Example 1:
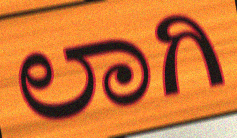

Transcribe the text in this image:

ಲಾಗಿ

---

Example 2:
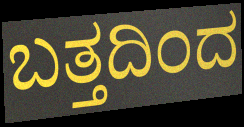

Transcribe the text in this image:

ಬತ್ತದಿಂದ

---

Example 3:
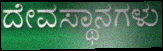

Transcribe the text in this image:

ದೇವಸ್ಥಾನಗಳು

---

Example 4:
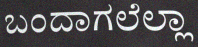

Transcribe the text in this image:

ಬಂದಾಗಲೆಲ್ಲಾ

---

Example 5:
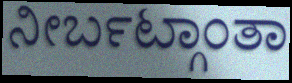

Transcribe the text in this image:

ನೀರ್ಬಟ್ಗಾಂತಾ